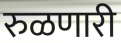
रुळणारी